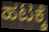
ಹಟಕ್ಕೆ